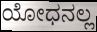
ಯೋಧನಲ್ಲ